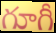
గూగీ